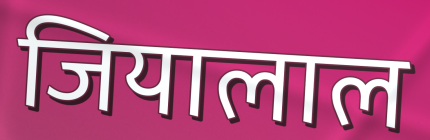
जियालाल